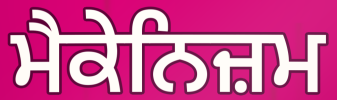
ਮੈਕੇਨਿਜ਼ਮ